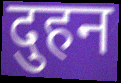
दुहन